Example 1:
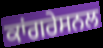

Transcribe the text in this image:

ਕਾਂਗਰੇਸਨਲ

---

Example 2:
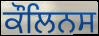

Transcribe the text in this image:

ਕੌਲਿਨਸ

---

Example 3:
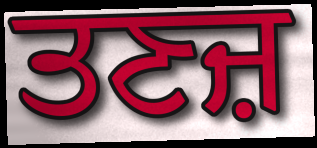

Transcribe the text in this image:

ਤਣਜ਼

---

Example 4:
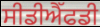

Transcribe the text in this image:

ਸੀਡੀਐੱਫਡੀ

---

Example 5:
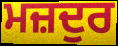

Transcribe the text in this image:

ਮਜ਼ਦੁਰ